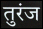
तुरंज